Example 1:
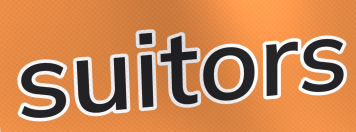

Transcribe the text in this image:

suitors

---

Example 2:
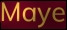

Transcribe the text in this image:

Maye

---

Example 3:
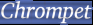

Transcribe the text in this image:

Chrompet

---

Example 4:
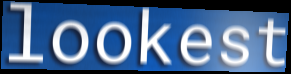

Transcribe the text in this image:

lookest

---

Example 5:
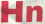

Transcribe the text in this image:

Hn